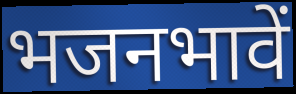
भजनभावें